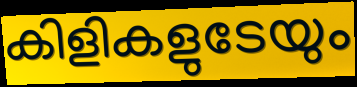
കിളികളുടേയും